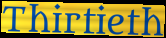
Thirtieth